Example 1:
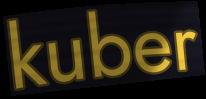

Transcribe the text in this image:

kuber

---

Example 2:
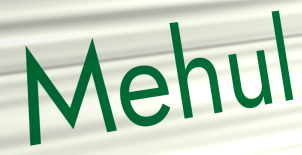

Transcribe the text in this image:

Mehul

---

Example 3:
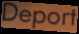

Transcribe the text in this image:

Deport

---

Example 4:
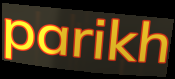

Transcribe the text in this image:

parikh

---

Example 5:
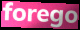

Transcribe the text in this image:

forego